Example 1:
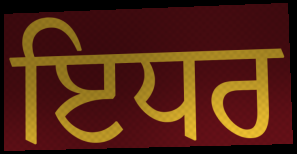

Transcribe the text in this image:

ਇਧਰ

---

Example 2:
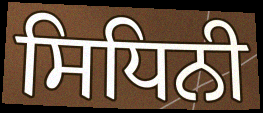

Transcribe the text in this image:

ਸਿਧਿਨੀ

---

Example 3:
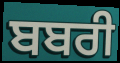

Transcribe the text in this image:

ਬਬਰੀ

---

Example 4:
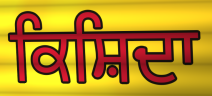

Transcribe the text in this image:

ਕਿਸ਼ਿਦਾ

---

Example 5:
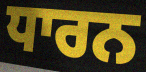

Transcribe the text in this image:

ਧਾਰਨ